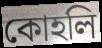
কোহলি